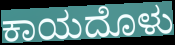
ಕಾಯದೊಳು